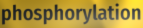
phosphorylation